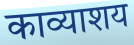
काव्याशय